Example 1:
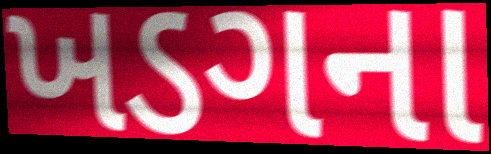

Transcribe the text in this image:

ખડગના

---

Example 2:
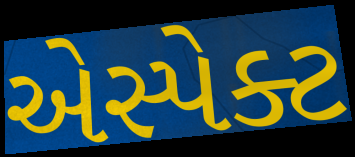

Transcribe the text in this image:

એસ્પેક્ટ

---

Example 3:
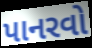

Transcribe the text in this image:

પાનરવો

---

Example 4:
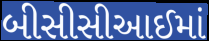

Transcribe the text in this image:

બીસીસીઆઈમાં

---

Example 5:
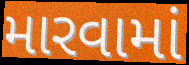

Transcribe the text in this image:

મારવામાં